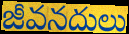
జీవనదులు